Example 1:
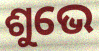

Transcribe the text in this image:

ଶୁଭେ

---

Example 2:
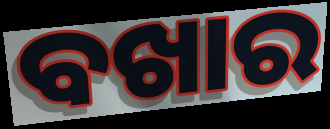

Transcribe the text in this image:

ବଖାର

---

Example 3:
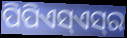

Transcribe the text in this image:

ପିପିଏସ୍ଏସ୍‌ର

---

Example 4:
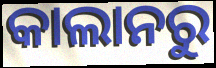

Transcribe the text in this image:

କାଲାନରୁ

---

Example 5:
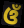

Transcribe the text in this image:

ଓଁ